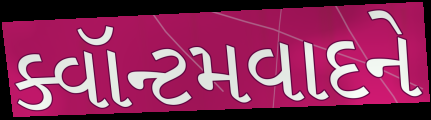
ક્વૉન્ટમવાદને